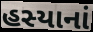
હસ્યાનાં